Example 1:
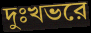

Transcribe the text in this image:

দুঃখভরে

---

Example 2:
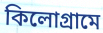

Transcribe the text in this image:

কিলোগ্রামে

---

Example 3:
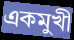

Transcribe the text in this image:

একমুখী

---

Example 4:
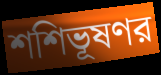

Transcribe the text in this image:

শশিভূষণর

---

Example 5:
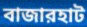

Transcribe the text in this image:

বাজারহাট